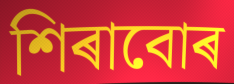
শিৰাবোৰ